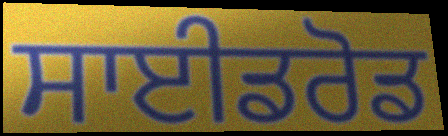
ਸਾਈਡਰੋਡ